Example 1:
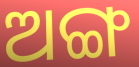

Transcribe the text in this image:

ଅଙ୍ଗ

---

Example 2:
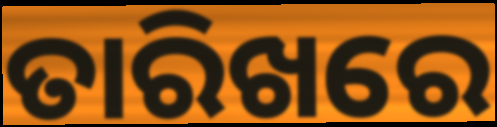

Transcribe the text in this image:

ତାରିଖରେ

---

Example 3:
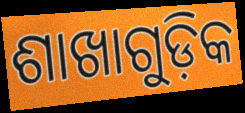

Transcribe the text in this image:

ଶାଖାଗୁଡ଼ିକ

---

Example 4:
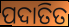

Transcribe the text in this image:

ପଦାତିତ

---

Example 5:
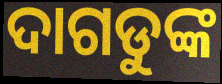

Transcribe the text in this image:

ଦାଗଡୁଙ୍କ